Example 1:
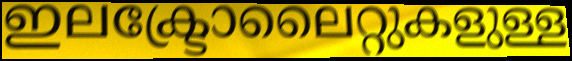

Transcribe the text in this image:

ഇലക്ട്രോലൈറ്റുകളുള്ള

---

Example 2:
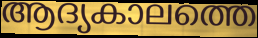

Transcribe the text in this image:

ആദ്യകാലത്തെ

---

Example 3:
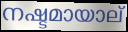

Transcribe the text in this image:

നഷ്ടമായാല്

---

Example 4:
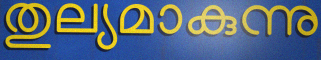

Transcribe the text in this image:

തുല്യമാകുന്നു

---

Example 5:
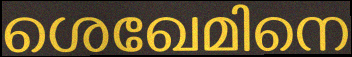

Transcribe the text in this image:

ശെഖേമിനെ